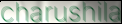
charushila